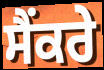
ਸੈਂਕਰੇ